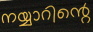
നയ്യാറിന്റെ